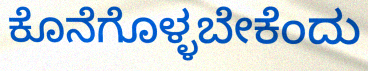
ಕೊನೆಗೊಳ್ಳಬೇಕೆಂದು